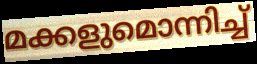
മക്കളുമൊന്നിച്ച്